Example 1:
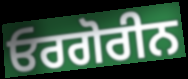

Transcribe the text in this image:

ਓਰਗੋਰੀਨ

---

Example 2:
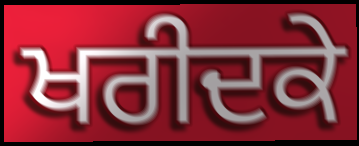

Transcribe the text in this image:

ਖਰੀਦਕੇ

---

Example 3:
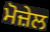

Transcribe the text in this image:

ਮੋਜ਼ੇਲ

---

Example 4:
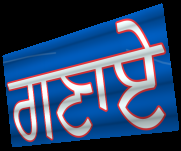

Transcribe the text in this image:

ਗਣਾਏ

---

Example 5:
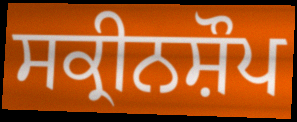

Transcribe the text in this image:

ਸਕ੍ਰੀਨਸ਼ੌਪ